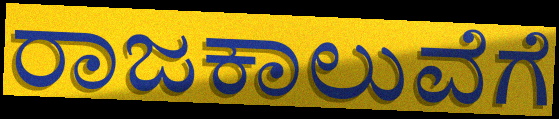
ರಾಜಕಾಲುವೆಗೆ